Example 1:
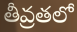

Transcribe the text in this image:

తీవ్రతలో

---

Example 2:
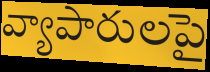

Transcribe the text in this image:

వ్యాపారులపై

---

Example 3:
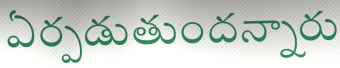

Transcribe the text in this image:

ఏర్పడుతుందన్నారు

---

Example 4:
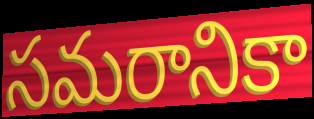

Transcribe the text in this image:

సమరానికా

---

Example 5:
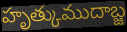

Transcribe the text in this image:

హృత్కుముదాబ్జ